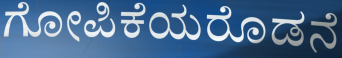
ಗೋಪಿಕೆಯರೊಡನೆ